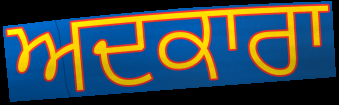
ਅਦਕਾਰਾ